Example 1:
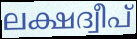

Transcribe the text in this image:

ലക്ഷദ്വീപ്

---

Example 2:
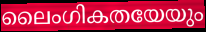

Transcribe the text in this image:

ലൈംഗികതയേയും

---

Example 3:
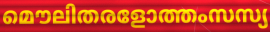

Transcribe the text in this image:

മൌലിതരളോത്തംസസ്യ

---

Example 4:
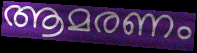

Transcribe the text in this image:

ആമരണം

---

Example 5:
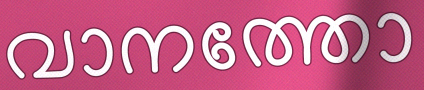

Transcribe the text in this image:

വാനത്തോ